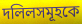
দলিলসমূহকে